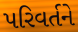
પરિવર્તને